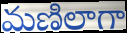
మణిలాగా